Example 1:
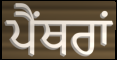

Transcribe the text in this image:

ਪੈਂਥਰਾਂ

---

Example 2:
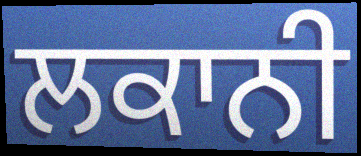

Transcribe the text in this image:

ਲਕਾਨੀ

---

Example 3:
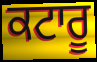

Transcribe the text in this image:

ਕਟਾਰੂ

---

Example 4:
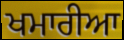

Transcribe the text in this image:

ਖਮਾਰੀਆ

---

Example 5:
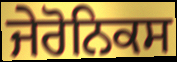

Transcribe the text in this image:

ਜੇਰੋਨਿਕਸ